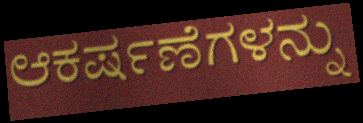
ಆಕರ್ಷಣೆಗಳನ್ನು